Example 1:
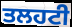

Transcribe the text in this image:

ਤਲਹਟੀ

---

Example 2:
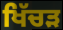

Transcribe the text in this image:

ਖਿੱਚੜ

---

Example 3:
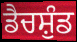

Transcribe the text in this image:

ਡੈਚਸ਼ੁੰਡ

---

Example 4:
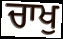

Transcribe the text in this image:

ਚਾਖੁ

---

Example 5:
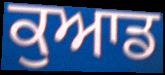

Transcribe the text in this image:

ਕੁਆਡ